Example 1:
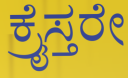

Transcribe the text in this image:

ಕ್ರೈಸ್ತರೇ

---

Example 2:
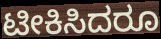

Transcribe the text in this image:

ಟೀಕಿಸಿದರೂ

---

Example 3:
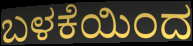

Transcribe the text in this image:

ಬಳಕೆಯಿಂದ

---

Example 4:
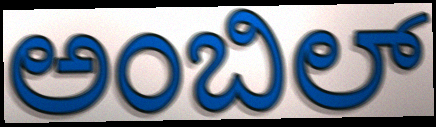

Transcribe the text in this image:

ಅಂಬಿಲ್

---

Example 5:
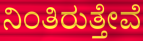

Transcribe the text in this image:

ನಿಂತಿರುತ್ತೇವೆ